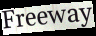
Freeway